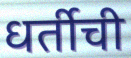
धर्तीची